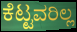
ಕೆಟ್ಟವರಿಲ್ಲ